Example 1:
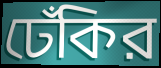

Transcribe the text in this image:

ঢেঁকির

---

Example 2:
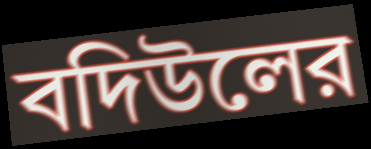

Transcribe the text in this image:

বদিউলের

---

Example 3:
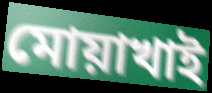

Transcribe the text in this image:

মোয়াখাই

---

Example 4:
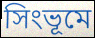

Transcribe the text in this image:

সিংভূমে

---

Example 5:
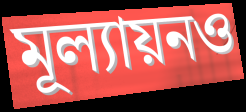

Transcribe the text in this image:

মূল্যায়নও